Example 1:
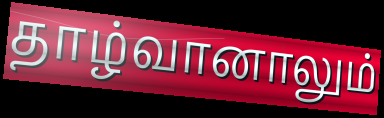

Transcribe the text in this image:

தாழ்வானாலும்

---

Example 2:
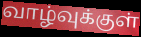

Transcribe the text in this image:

வாழ்வுக்குள்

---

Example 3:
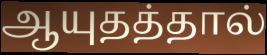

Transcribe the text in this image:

ஆயுதத்தால்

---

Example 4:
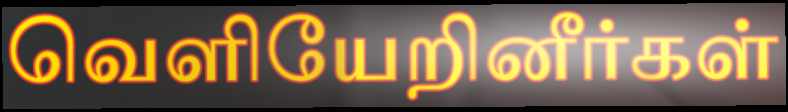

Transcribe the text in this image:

வெளியேறினீர்கள்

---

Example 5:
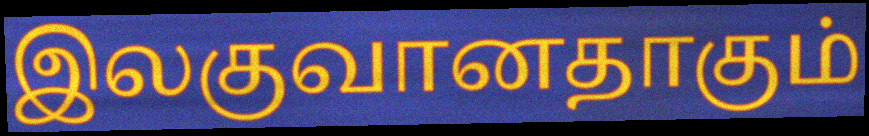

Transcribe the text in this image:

இலகுவானதாகும்